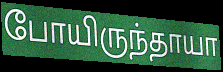
போயிருந்தாயா